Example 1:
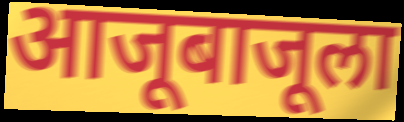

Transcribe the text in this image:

आजूबाजूला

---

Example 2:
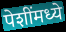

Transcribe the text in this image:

पेशींमध्ये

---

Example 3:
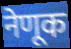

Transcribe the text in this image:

नेणूक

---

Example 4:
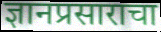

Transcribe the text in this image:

ज्ञानप्रसाराचा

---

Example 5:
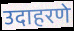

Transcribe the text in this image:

उदाहरणे